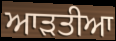
ਆੜਤੀਆ